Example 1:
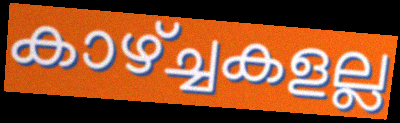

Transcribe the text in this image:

കാഴ്ച്ചകളല്ല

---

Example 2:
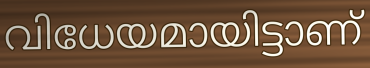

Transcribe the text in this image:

വിധേയമായിട്ടാണ്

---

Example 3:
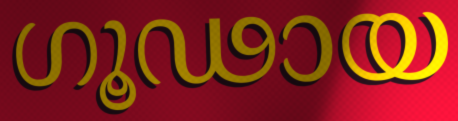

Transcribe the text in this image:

ഗൂഢായ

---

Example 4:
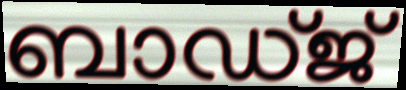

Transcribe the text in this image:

ബാഡ്ജ്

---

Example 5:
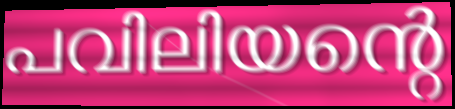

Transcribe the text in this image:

പവിലിയന്റെ